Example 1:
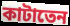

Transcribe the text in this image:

কাটাতেন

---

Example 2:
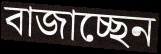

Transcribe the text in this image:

বাজাচ্ছেন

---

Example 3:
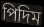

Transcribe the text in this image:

পিদিম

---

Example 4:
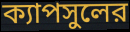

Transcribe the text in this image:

ক্যাপসুলের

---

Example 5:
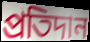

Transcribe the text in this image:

প্রতিদান